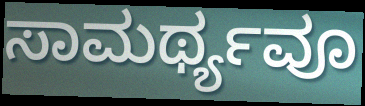
ಸಾಮರ್ಥ್ಯವೂ